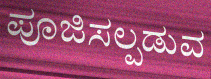
ಪೂಜಿಸಲ್ಪಡುವ